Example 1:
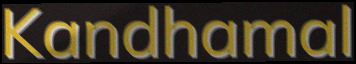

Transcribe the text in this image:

Kandhamal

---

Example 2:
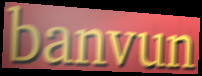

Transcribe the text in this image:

banvun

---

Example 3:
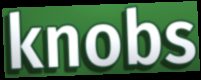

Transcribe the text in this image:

knobs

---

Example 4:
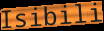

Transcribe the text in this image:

Isibili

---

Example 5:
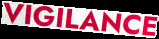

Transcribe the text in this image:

VIGILANCE